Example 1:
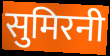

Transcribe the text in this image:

सुमिरनी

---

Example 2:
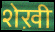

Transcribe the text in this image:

शेख़ी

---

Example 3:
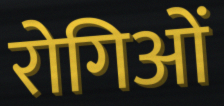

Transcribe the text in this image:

रोगिओं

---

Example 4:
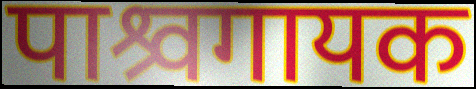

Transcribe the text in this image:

पाश्र्वगायक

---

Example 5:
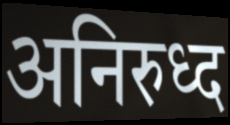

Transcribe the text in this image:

अनिरुध्द